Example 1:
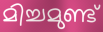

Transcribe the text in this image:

മിച്ചമുണ്ട്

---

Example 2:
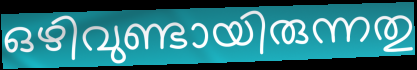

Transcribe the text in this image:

ഒഴിവുണ്ടായിരുന്നതു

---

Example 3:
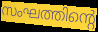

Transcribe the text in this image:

സംഘത്തിന്റെ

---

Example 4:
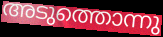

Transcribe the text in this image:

അടുത്തൊന്നു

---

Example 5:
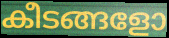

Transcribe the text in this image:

കീടങ്ങളോ